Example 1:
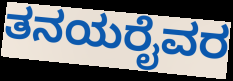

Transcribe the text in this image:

ತನಯರೈವರ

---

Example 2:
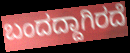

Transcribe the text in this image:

ಬಂದದ್ದಾಗಿರದೆ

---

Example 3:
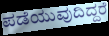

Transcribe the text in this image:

ಪಡೆಯುವುದಿದ್ದರೆ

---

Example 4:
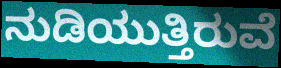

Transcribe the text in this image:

ನುಡಿಯುತ್ತಿರುವೆ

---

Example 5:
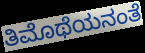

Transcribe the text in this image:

ತಿಮೊಥೆಯನಂತೆ